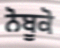
ਨੋਬੂਕੋ